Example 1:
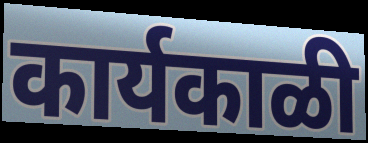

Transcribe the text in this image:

कार्यकाळी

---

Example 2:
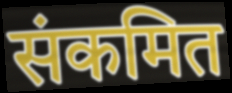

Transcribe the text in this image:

संकमित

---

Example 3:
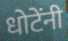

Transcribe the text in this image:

धोटेंनी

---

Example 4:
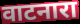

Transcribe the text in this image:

वाटनारा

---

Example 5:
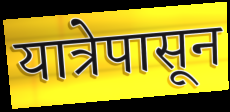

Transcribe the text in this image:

यात्रेपासून